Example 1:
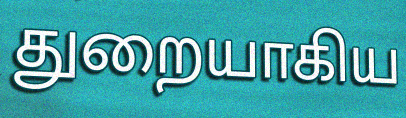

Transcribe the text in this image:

துறையாகிய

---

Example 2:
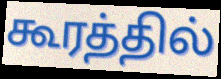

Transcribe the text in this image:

கூரத்தில்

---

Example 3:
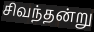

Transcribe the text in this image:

சிவந்தன்று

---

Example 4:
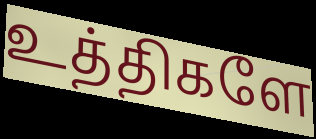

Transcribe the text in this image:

உத்திகளே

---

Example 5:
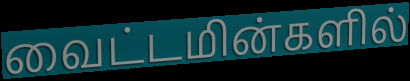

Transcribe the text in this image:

வைட்டமின்களில்